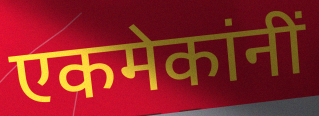
एकमेकांनीं